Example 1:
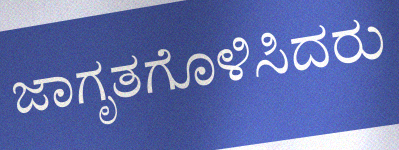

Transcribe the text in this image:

ಜಾಗೃತಗೊಳಿಸಿದರು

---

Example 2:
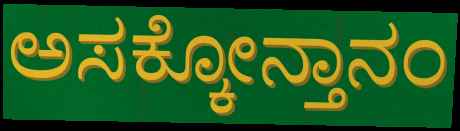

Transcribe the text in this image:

ಅಸಕ್ಕೋನ್ತಾನಂ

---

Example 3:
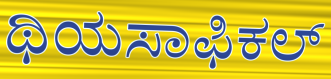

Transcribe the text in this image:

ಥಿಯಸಾಫಿಕಲ್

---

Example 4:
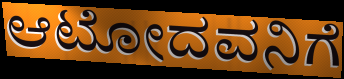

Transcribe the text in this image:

ಆಟೋದವನಿಗೆ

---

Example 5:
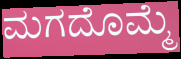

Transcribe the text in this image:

ಮಗದೊಮ್ಮೆ